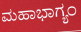
ಮಹಾಭಾಗ್ಯಂ